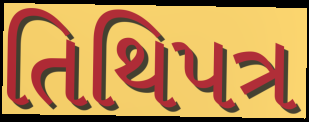
તિથિપત્ર